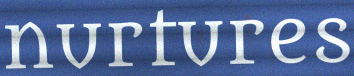
nurtures